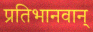
प्रतिभानवान्